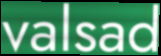
valsad